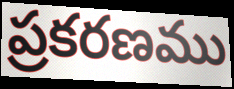
ప్రకరణము